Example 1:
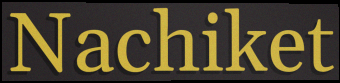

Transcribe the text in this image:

Nachiket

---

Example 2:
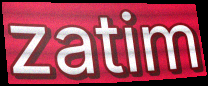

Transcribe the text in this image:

zatim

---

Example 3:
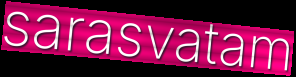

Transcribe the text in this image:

sarasvatam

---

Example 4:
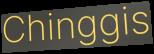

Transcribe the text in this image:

Chinggis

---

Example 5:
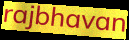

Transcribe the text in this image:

rajbhavan